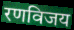
रणविजय